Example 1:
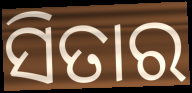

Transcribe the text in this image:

ସିତାର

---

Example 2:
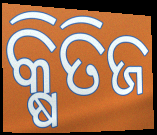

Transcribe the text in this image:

କ୍ଷିତିଜ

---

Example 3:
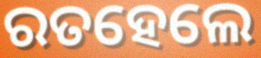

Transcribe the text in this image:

ରତହେଲେ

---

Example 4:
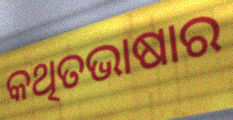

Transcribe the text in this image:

କଥିତଭାଷାର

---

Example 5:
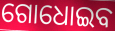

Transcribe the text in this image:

ଗୋଧୋଇବ